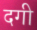
दगी